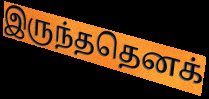
இருந்ததெனக்